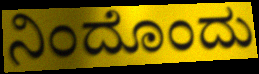
ನಿಂದೊಂದು